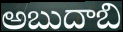
అబుదాబి